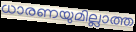
ധാരണയുമില്ലാത്ത